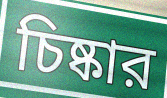
চিষ্কার